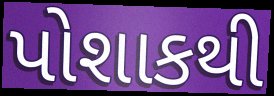
પોશાકથી